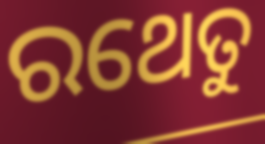
ରଥେତୁ